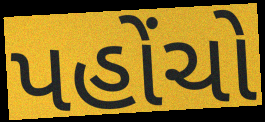
પહોંચો